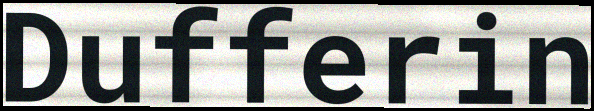
Dufferin